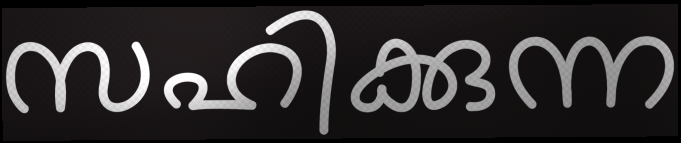
സഹിക്കുന്ന